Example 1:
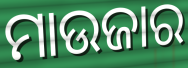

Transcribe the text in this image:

ମାଉଜାର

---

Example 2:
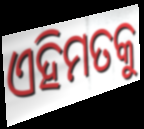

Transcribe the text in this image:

ଏହିମତକୁ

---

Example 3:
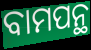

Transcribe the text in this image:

ବାମପନ୍ଥ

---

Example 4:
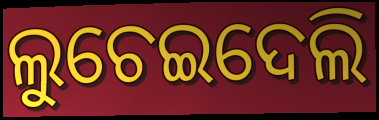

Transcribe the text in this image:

ଲୁଚେଇଦେଲି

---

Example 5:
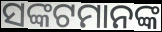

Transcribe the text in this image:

ସଙ୍କଟମାନଙ୍କ